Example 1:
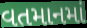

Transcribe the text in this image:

વતમાનમાં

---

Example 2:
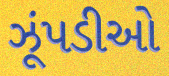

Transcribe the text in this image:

ઝૂંપડીઓ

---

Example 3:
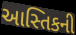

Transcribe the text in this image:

આસ્તિકની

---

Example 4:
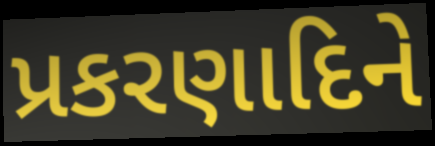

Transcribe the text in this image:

પ્રકરણાદિને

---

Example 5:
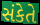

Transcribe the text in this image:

સંકેતે